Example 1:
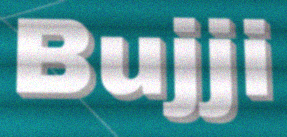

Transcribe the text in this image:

Bujji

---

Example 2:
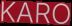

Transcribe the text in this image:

KARO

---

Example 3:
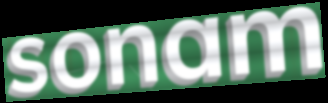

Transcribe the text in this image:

sonam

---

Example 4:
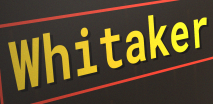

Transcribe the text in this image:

Whitaker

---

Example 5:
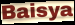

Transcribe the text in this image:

Baisya